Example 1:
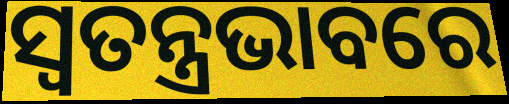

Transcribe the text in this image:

ସ୍ଵତନ୍ତ୍ରଭାବରେ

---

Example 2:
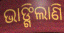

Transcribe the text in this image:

ଭାଙ୍ଗିଲାଣି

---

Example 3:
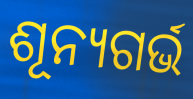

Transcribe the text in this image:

ଶୂନ୍ୟଗର୍ଭ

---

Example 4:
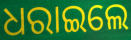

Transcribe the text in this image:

ଧରାଇଲେ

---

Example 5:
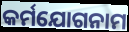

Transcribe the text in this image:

କର୍ମଯୋଗନାମ